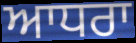
ਆਧਰਾ